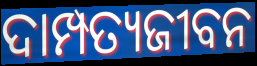
ଦାମ୍ପତ୍ୟଜୀବନ